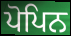
ਪੋਪਿਨ